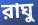
রাঘু